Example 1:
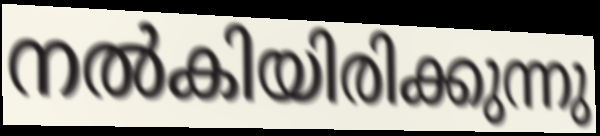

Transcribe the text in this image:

നൽകിയിരിക്കുന്നു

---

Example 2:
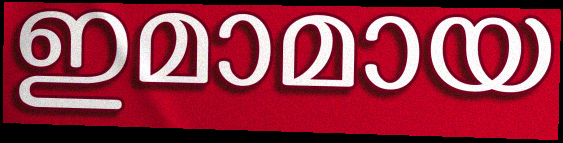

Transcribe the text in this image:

ഇമാമായ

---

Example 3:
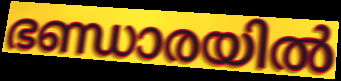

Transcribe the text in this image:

ഭണ്ഡാരയിൽ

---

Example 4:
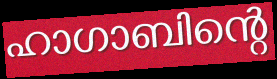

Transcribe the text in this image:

ഹാഗാബിന്റെ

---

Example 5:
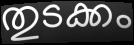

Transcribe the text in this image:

തുടക്കം